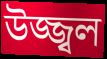
উজ্জ্বল